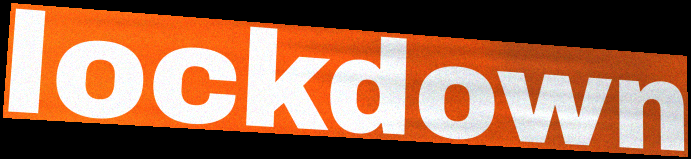
lockdown